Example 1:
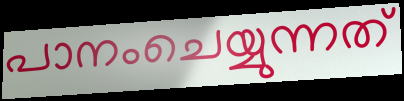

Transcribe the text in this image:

പാനംചെയ്യുന്നത്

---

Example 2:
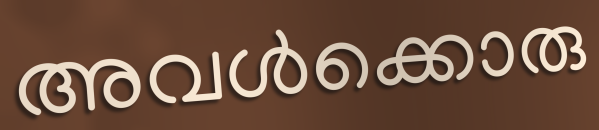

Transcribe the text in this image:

അവൾക്കൊരു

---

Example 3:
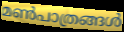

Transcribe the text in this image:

മൺപാത്രങ്ങൾ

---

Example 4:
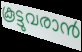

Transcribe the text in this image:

കൂട്ടുവരാൻ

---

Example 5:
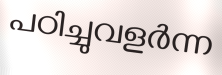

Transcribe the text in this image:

പഠിച്ചുവളർന്ന